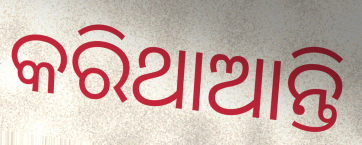
କରିଥାଆନ୍ତି